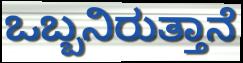
ಒಬ್ಬನಿರುತ್ತಾನೆ